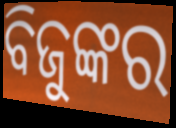
ବିଜୁଙ୍କର